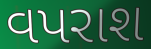
વપરાશ